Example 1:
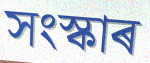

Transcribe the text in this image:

সংস্কাৰ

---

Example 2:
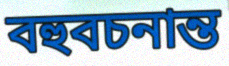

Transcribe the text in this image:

বহুবচনান্ত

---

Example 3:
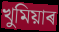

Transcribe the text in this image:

খুমিয়াৰ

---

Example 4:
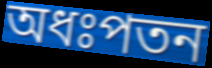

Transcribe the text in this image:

অধঃপতন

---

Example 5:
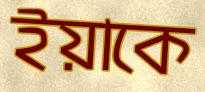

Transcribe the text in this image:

ইয়াকে